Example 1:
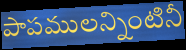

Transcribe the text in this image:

పాపములన్నింటినీ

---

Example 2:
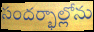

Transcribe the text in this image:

సందర్భాల్లోను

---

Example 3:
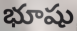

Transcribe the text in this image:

భూషు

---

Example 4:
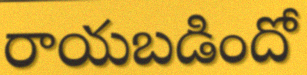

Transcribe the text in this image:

రాయబడిందో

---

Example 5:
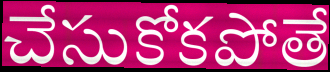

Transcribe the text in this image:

చేసుకోకపోతే